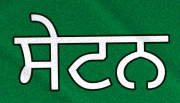
ਸੇਟਨ